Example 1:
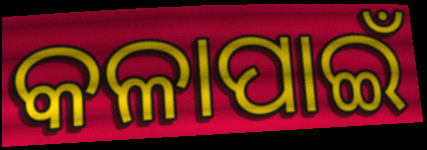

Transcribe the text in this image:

କଳାପାଇଁ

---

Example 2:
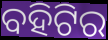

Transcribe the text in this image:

ବହିଟିର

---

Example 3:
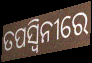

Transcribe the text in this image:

ତପସ୍ଵିନୀରେ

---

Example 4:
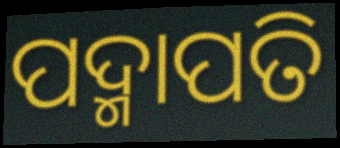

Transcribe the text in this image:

ପଦ୍ମାପତି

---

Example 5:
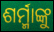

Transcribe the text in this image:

ଶର୍ମ୍ମାଙ୍କୁ